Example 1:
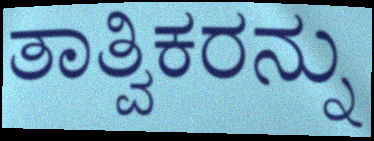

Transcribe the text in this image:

ತಾತ್ವಿಕರನ್ನು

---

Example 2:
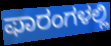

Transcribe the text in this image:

ಫಾರಂಗಳಲ್ಲಿ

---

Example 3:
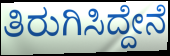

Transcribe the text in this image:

ತಿರುಗಿಸಿದ್ದೇನೆ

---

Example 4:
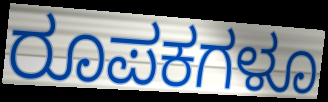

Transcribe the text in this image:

ರೂಪಕಗಳೂ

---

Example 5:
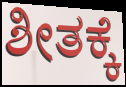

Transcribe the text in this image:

ಶೀತಕ್ಕೆ